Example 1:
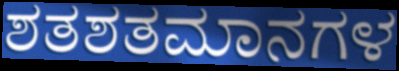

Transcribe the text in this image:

ಶತಶತಮಾನಗಳ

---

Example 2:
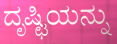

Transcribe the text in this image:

ದೃಷ್ಟಿಯನ್ನು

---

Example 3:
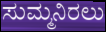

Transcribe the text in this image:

ಸುಮ್ಮನಿರಲು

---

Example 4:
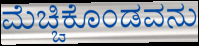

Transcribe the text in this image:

ಮೆಚ್ಚಿಕೊಂಡವನು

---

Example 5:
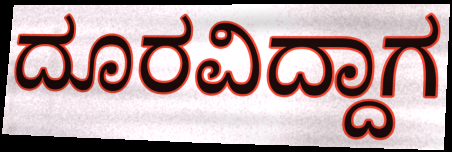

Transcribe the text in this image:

ದೂರವಿದ್ದಾಗ